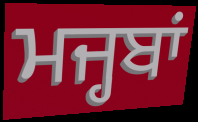
ਮਜ੍ਹਬਾਂ